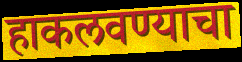
हाकलवण्याचा